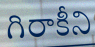
గిరాకీని